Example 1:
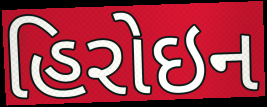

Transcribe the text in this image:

હિરોઇન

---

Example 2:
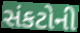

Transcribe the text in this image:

સંકટોની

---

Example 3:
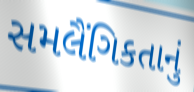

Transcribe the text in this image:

સમલૈંગિકતાનું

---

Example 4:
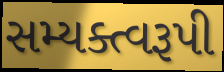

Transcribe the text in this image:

સમ્યક્ત્વરૂપી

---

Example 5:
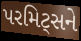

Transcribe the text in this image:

પરમિટ્સને